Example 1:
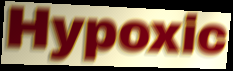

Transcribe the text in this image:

Hypoxic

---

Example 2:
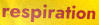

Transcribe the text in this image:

respiration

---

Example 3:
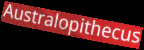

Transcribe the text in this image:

Australopithecus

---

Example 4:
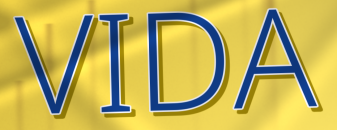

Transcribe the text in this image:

VIDA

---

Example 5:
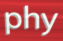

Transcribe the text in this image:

phy